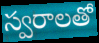
స్వరాలతో